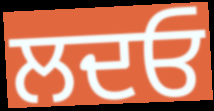
ਲਦਓ